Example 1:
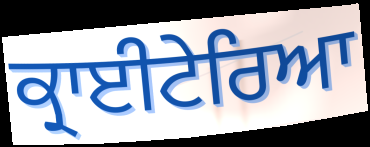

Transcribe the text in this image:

ਕ੍ਰਾਈਟੇਰਿਆ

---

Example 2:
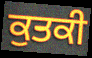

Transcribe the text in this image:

ਕੁਤਕੀ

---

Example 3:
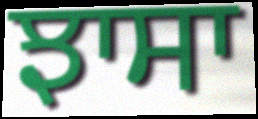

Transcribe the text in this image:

ਝਾਸਾ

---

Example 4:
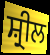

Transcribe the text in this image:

ਸ਼੍ਰੀਲ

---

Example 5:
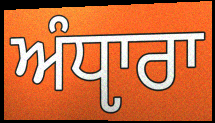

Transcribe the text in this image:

ਅੰਧੵਾਰਾ